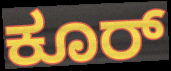
ಕೂರ್